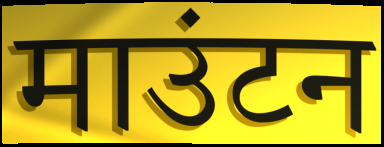
माउंटन